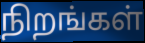
நிறங்கள்